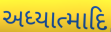
અધ્યાત્માદિ